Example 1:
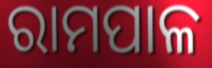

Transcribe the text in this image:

ରାମପାଳ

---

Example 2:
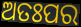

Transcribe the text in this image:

ଅତଃପର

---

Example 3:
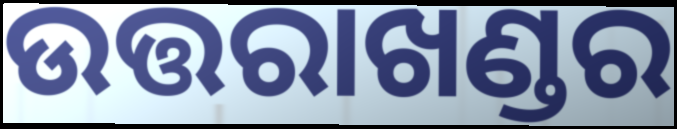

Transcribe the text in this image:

ଉତ୍ତରାଖଣ୍ଡର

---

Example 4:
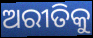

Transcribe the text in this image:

ଅରୀତିକୁ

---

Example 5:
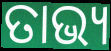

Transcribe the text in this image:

ତାଭ୍ୟ